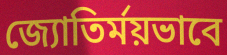
জ্যোতির্ময়ভাবে